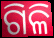
ଗିଳି